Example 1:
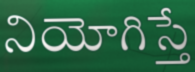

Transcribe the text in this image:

నియోగిస్తే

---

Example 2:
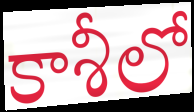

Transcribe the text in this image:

కాశీలో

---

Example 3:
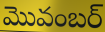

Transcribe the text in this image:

మొవంబర్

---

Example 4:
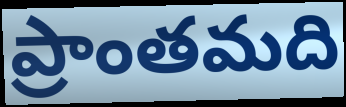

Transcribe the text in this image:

ప్రాంతమది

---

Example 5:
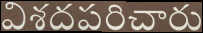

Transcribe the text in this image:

విశదపరిచారు